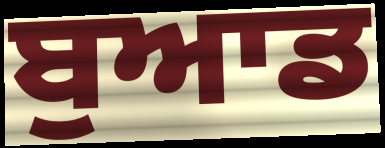
ਬੁਆਡ